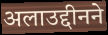
अलाउद्दीनने